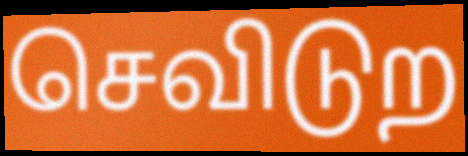
செவிடுற